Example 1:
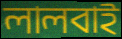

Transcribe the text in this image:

লালবাই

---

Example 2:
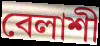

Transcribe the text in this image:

বেলাশী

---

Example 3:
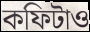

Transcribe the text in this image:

কফিটাও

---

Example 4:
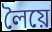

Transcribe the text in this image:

লৈয়ে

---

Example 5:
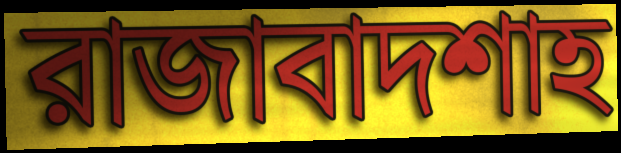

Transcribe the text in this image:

রাজাবাদশাহ